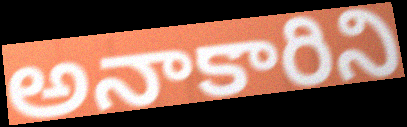
అనాకారిని